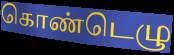
கொண்டெழு